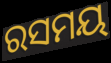
ରସମୟ